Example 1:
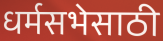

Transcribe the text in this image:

धर्मसभेसाठी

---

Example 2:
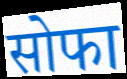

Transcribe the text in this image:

सोफा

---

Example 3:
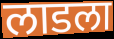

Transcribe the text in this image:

लाडला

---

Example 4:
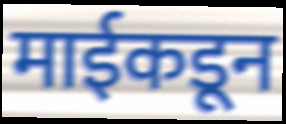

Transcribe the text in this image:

माईकडून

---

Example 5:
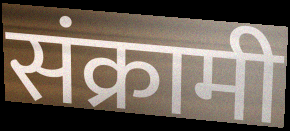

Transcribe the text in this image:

संक्रामी